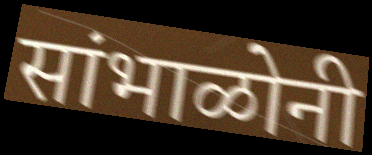
सांभाळोनी